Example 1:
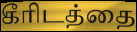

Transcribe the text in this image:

கீரிடத்தை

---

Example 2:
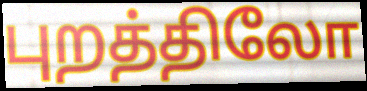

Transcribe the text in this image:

புறத்திலோ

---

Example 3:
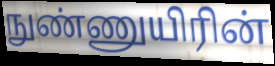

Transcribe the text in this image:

நுண்ணுயிரின்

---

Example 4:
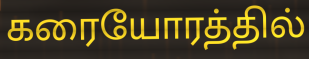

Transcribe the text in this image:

கரையோரத்தில்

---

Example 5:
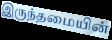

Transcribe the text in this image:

இருந்தமையின்